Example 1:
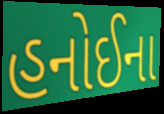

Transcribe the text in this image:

હનોઈના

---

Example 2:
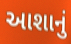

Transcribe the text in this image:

આશાનું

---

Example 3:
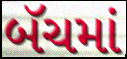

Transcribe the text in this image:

બૅચમાં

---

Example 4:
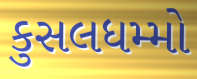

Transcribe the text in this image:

કુસલધમ્મો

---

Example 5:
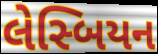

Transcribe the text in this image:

લેસ્બિયન